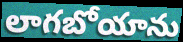
లాగబోయాను